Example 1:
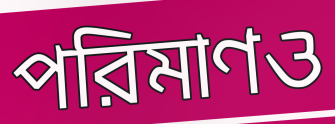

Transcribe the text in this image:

পরিমাণও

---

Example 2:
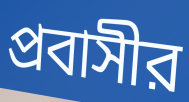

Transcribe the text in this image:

প্রবাসীর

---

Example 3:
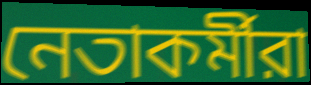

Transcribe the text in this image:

নেতাকর্মীরা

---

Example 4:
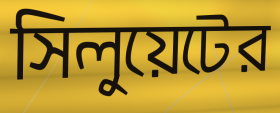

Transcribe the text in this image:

সিলুয়েটের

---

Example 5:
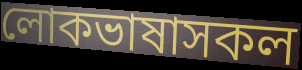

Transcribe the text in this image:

লোকভাষাসকল